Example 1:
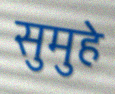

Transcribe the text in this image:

सुमुहे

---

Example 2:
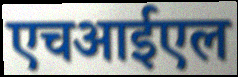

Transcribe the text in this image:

एचआईएल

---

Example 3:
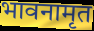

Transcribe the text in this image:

भावनामृत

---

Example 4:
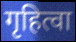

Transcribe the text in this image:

गृहित्वा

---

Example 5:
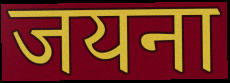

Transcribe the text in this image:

जयना